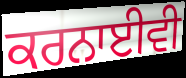
ਕਰਨਾਈਵੀ